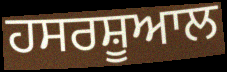
ਹਸਰਸ਼ੂਆਲ